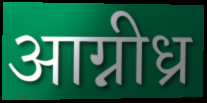
आग्नीध्र